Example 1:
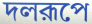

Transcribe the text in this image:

দলরূপে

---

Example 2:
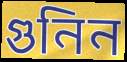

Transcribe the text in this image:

গুনিন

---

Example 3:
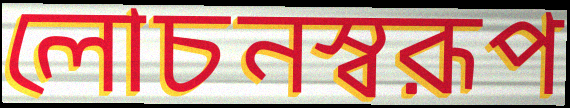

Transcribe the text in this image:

লোচনস্বরূপ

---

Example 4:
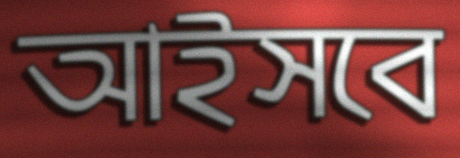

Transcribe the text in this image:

আইসবে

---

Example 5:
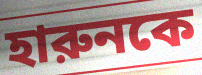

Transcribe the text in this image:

হারুনকে